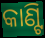
କାଣ୍ଟି